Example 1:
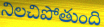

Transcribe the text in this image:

నిలచిపోతుంది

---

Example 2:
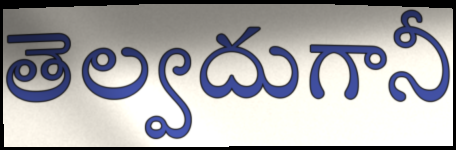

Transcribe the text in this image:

తెల్వదుగానీ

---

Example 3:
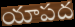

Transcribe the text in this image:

యాపద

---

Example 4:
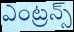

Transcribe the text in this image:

ఎంట్రన్స్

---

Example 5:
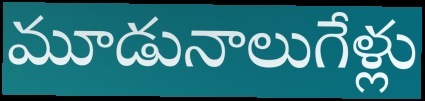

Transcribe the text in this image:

మూడునాలుగేళ్లు